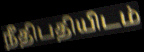
நீதிபதியிடம்